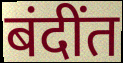
बंदींत